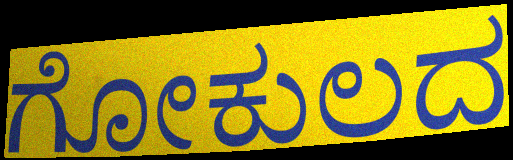
ಗೋಕುಲದ